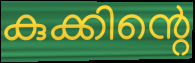
കുക്കിന്റെ